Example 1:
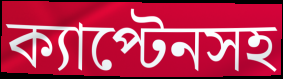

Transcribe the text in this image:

ক্যাপ্টেনসহ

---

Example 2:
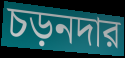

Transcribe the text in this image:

চড়নদার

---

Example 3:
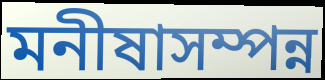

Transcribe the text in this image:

মনীষাসম্পন্ন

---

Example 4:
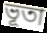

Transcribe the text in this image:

ভূতা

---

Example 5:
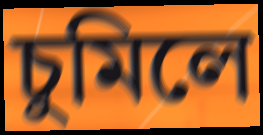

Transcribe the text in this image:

চুমিলে